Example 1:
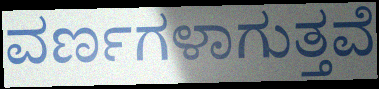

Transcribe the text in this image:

ವರ್ಣಗಳಾಗುತ್ತವೆ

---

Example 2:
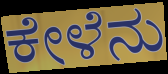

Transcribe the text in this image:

ಕೇಳೆನು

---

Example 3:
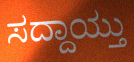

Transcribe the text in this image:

ಸದ್ದಾಯ್ತು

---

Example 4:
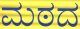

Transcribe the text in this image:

ಮಠದ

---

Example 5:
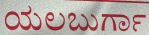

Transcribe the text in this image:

ಯಲಬುರ್ಗಾ